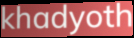
khadyoth